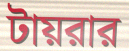
টায়রার